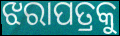
ଝରାପତ୍ରକୁ